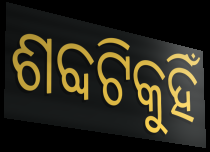
ଶବ୍ଦଟିକୁହିଁ